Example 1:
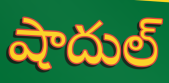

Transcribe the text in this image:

షాదుల్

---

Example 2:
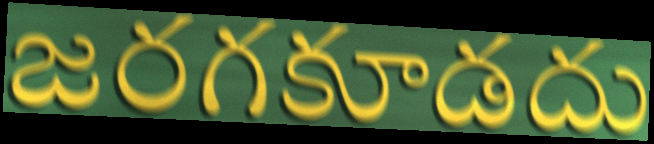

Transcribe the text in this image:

జరగకూడదు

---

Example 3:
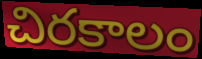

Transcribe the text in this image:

చిరకాలం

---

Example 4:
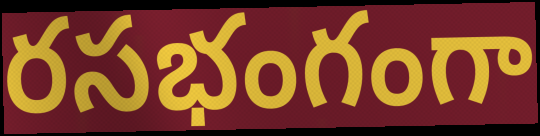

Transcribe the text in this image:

రసభంగంగా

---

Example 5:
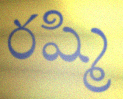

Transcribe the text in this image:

రష్మి